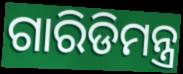
ଗାରିଡିମନ୍ତ୍ର